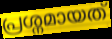
പ്രശ്നമായത്